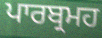
ਪਾਰਬ੍ਰਮਹ